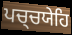
ਪਚ੍ਚਯੇਹਿ